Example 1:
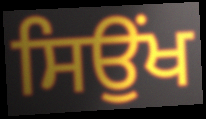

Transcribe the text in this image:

ਸਿਉਂਖ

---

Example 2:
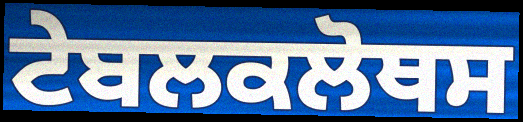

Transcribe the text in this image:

ਟੇਬਲਕਲੋਥਸ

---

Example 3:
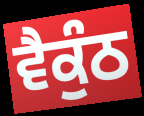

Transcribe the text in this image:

ਵੈਕੁੰਠ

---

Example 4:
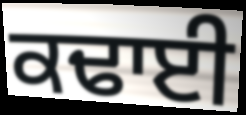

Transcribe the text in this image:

ਕਢਾਈ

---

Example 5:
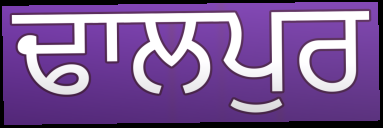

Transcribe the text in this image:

ਢਾਲਪੁਰ